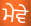
ਮੇਵੇ